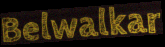
Belwalkar